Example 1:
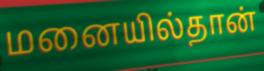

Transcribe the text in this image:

மனையில்தான்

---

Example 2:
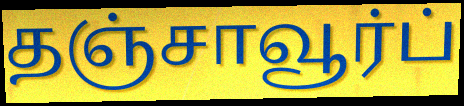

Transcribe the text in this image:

தஞ்சாவூர்ப்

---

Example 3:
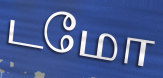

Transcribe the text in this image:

டமோ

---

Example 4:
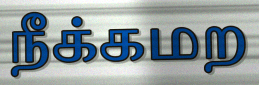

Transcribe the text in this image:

நீக்கமற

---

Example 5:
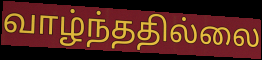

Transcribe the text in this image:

வாழ்ந்ததில்லை